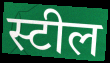
स्‍टील